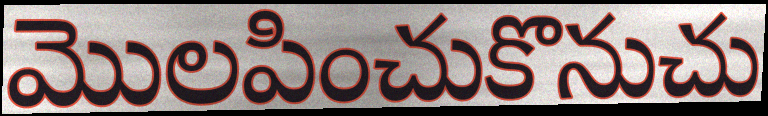
మొలపించుకొనుచు